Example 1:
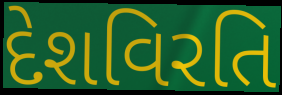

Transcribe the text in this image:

દેશવિરતિ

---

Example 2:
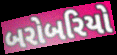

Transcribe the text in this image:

બરોબરિયો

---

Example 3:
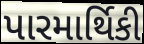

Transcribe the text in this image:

પારમાર્થિકી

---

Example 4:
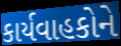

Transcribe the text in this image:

કાર્યવાહકોને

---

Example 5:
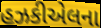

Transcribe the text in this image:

હઝકીએલના